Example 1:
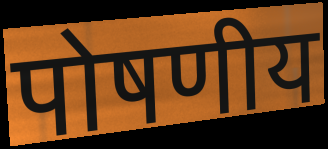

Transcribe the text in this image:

पोषणीय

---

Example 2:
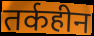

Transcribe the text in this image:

तर्कहीन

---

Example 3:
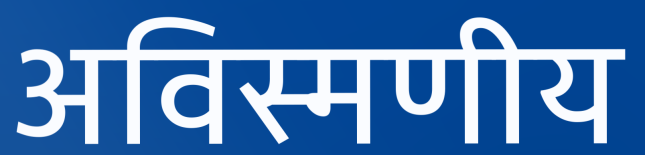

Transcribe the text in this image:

अविस्मणीय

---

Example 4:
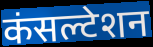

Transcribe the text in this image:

कंसल्टेशन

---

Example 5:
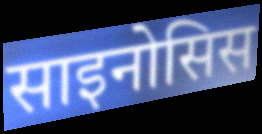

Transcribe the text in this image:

साइनोसिस